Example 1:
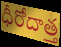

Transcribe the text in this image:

ధీరోదాత్త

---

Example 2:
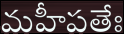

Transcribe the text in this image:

మహీపతేః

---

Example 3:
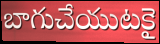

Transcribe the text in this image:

బాగుచేయుటకై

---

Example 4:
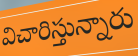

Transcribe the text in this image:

విచారిస్తున్నారు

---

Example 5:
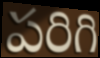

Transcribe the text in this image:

పరిగి